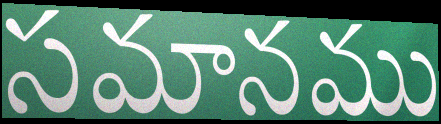
సమానము